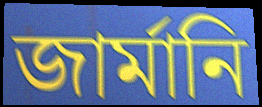
জার্মানি